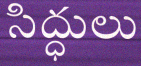
సిద్ధులు